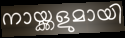
നായ്ക്കളുമായി